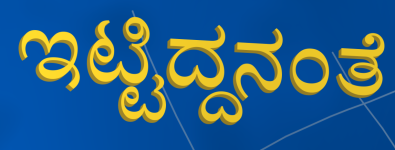
ಇಟ್ಟಿದ್ದನಂತೆ